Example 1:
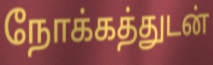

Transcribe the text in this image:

நோக்கத்துடன்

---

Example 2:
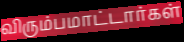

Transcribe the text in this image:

விரும்பமாட்டார்கள்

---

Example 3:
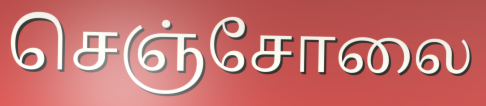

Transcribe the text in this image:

செஞ்சோலை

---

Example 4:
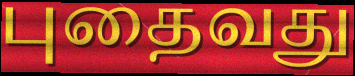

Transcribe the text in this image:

புதைவது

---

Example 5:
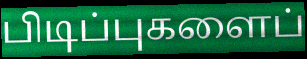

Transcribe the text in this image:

பிடிப்புகளைப்